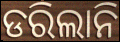
ଡରିଲାନି